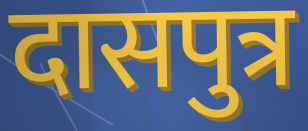
दासपुत्र